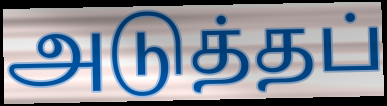
அடுத்தப்